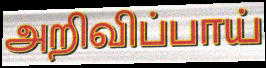
அறிவிப்பாய்